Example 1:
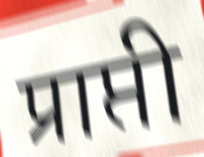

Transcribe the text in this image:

प्राप्ती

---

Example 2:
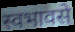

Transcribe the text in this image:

स्वभावसे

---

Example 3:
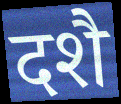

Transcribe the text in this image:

दशै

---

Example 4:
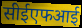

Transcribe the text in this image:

सीईएफआई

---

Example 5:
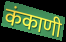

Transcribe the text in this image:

कंकाणी